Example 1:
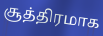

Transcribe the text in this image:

சூத்திரமாக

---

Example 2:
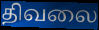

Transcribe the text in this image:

திவலை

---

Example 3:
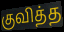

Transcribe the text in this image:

குவித்த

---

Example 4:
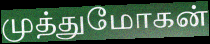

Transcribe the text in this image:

முத்துமோகன்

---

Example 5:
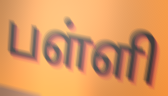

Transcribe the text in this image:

பள்ளி